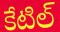
కేటిల్